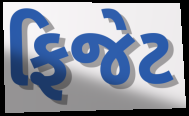
ફિજેટ